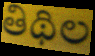
తిథిల